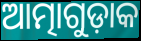
ଆତ୍ମାଗୁଡ଼ାକ